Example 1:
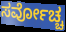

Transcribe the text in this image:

ಸರ್ವೋಚ್ಚ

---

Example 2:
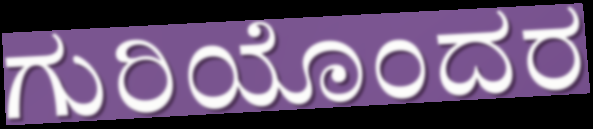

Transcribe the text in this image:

ಗುರಿಯೊಂದರ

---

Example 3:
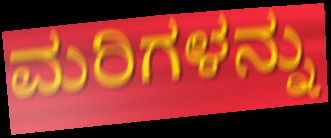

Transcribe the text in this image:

ಮರಿಗಳನ್ನು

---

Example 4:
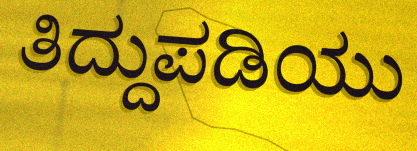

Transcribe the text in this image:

ತಿದ್ದುಪಡಿಯು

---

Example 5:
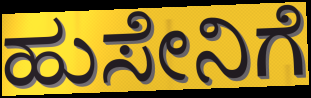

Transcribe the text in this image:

ಹುಸೇನಿಗೆ